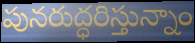
పునరుద్ధరిస్తున్నాం